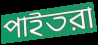
পাইতরা